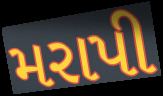
મરાપી